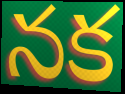
నక